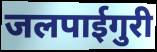
जलपाईगुरी